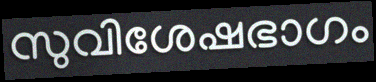
സുവിശേഷഭാഗം